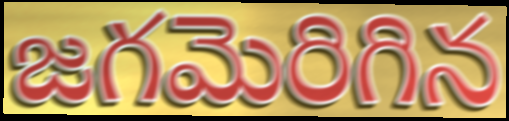
జగమెరిగిన